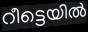
റീട്ടെയിൽ